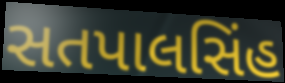
સતપાલસિંહ